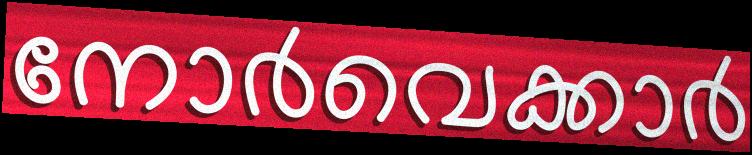
നോർവെക്കാർ